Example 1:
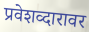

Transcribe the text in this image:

प्रवेशव्दारावर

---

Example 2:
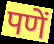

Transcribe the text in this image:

पणें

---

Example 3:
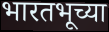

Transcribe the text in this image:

भारतभूच्या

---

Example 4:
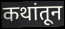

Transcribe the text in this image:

कथांतून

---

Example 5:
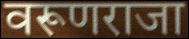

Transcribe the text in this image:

वरूणराजा